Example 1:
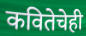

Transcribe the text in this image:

कवितेचेही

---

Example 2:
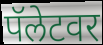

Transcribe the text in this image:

पॅलेटवर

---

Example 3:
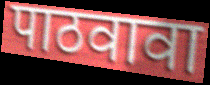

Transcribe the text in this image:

पाठवावा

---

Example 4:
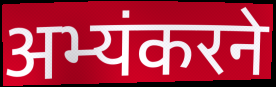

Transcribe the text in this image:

अभ्यंकरने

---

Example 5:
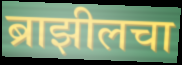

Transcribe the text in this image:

ब्राझीलचा